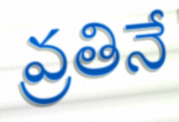
వ్రతినే